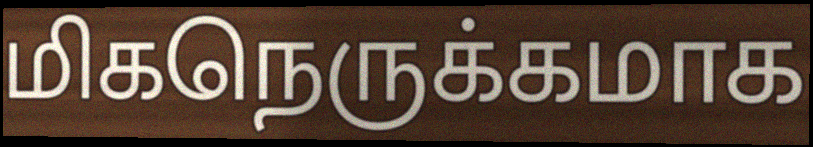
மிகநெருக்கமாக